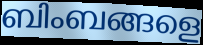
ബിംബങ്ങളെ